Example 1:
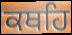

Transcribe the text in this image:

ਕਥਹਿ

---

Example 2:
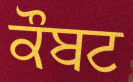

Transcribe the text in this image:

ਕੌਬਟ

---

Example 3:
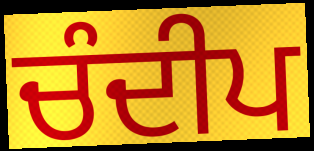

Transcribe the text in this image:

ਚੰਦੀਪ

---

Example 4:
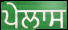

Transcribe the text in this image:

ਪੇਲਾਸ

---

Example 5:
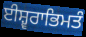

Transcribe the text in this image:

ਈਸ਼੍ਵਰਾਭਿਮਤੰ